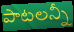
పాటలన్నీ